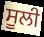
ਸੂਲੀ